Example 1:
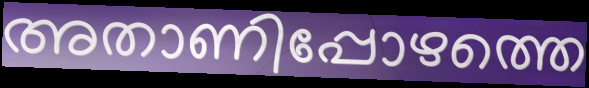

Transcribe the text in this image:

അതാണിപ്പോഴത്തെ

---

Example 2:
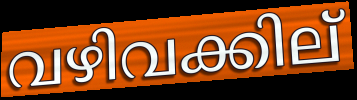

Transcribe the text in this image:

വഴിവക്കില്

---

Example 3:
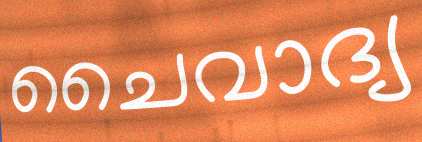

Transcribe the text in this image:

ചൈവാദ്യ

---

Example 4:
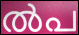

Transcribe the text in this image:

ൽപ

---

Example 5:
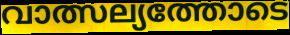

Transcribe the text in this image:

വാത്സല്യത്തോടെ